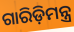
ଗାରିଡ଼ିମନ୍ତ୍ର